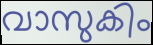
വാസുകിം